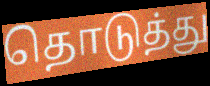
தொடுத்து